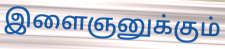
இளைஞனுக்கும்